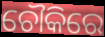
ଚୌକିରେ